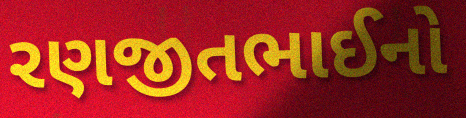
રણજીતભાઈનો